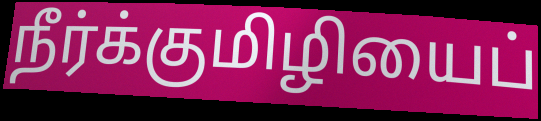
நீர்க்குமிழியைப்